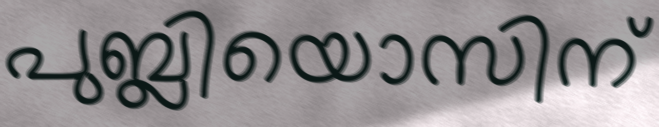
പുബ്ലിയൊസിന്